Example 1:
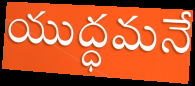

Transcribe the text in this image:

యుద్ధమనే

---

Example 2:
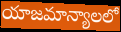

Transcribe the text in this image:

యాజమాన్యాలలో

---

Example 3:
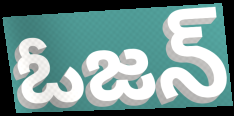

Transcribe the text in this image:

ఓజన్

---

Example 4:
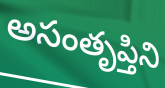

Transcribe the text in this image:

అసంతృప్తిని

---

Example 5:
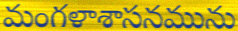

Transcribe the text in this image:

మంగళాశాసనమును